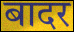
बादर